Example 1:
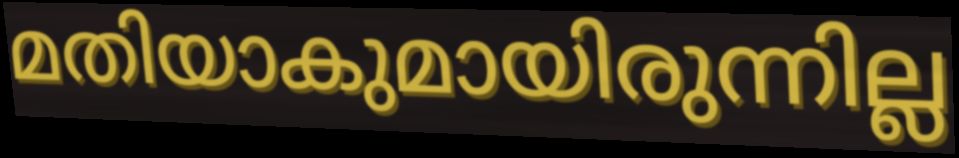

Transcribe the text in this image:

മതിയാകുമായിരുന്നില്ല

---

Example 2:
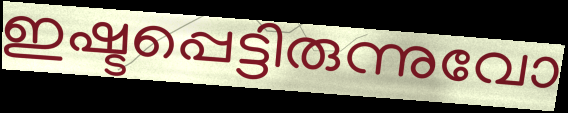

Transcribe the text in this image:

ഇഷ്ടപ്പെട്ടിരുന്നുവോ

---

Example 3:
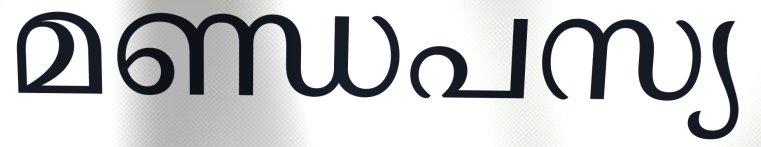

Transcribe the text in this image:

മണ്ഡപസ്യ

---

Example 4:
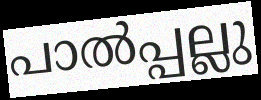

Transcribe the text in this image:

പാൽപ്പല്ലു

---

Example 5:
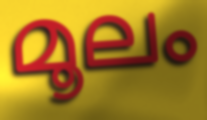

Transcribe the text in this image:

മൂലം